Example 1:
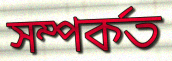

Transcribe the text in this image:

সম্পৰ্কত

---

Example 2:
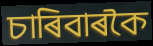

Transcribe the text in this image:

চাৰিবাৰকৈ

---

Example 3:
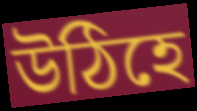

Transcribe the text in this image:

উঠিহে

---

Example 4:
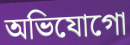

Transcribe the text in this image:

অভিযোগো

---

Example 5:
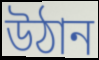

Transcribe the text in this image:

উঠান